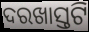
ଦରଖାସ୍ତଟି